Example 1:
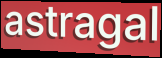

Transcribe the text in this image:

astragal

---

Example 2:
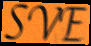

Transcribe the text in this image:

SVE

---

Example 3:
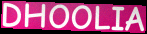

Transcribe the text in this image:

DHOOLIA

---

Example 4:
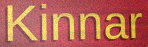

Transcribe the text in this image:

Kinnar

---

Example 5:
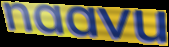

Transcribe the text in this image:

naavu